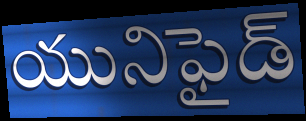
యునిఫైడ్